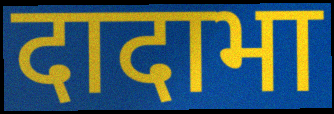
दादाभा